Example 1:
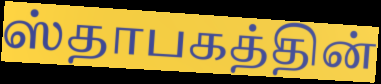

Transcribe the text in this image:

ஸ்தாபகத்தின்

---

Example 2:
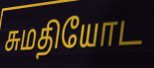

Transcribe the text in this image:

சுமதியோட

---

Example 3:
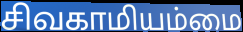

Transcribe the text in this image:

சிவகாமியம்மை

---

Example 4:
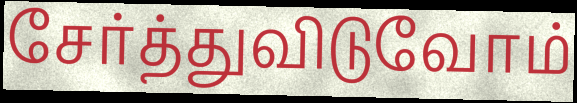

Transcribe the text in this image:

சேர்த்துவிடுவோம்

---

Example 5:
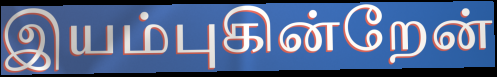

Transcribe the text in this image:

இயம்புகின்றேன்